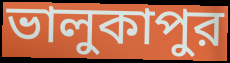
ভালুকাপুর